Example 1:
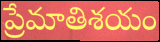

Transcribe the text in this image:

ప్రేమాతిశయం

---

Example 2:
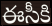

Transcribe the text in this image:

ఈసీకి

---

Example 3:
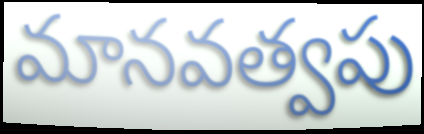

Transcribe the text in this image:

మానవత్వపు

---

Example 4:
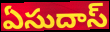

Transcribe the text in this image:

ఏసుదాస్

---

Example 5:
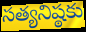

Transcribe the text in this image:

సత్యనిష్ఠకు